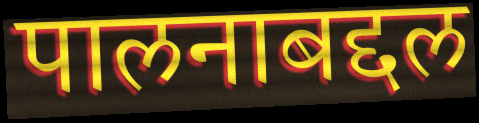
पालनाबद्दल